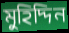
মুহিদ্দিন